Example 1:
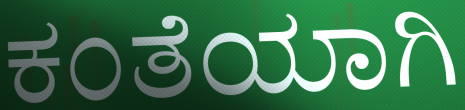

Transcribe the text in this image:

ಕಂತೆಯಾಗಿ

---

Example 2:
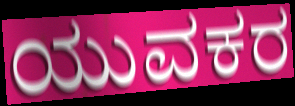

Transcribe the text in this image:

ಯುವಕರ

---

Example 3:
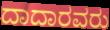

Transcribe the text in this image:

ದಾದಾರವರು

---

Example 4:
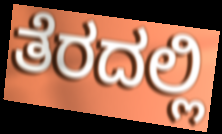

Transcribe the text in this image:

ತೆರದಲ್ಲಿ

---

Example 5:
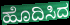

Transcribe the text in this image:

ಹೊದಿಸಿದ